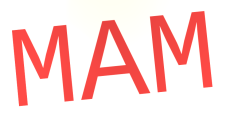
MAM